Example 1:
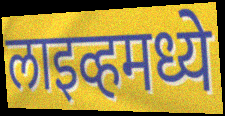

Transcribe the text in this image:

लाइव्हमध्ये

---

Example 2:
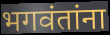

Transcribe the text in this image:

भगवंतांना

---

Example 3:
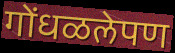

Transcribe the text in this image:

गोंधळलेपण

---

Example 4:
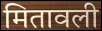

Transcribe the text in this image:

मितावली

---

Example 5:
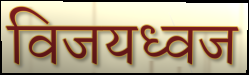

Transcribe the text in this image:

विजयध्वज